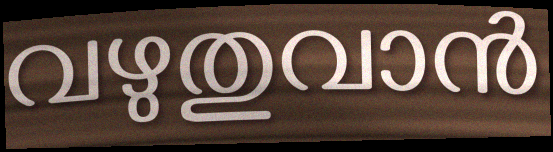
വഴുതുവാൻ